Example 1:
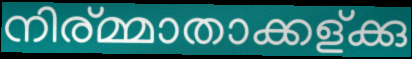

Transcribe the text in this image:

നിര്മ്മാതാക്കള്ക്കു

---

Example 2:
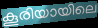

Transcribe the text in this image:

കൂരിയായിലെ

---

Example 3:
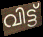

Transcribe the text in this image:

വിട്ട്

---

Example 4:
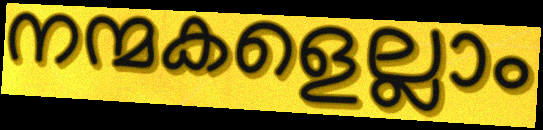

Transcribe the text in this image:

നന്മകളെല്ലാം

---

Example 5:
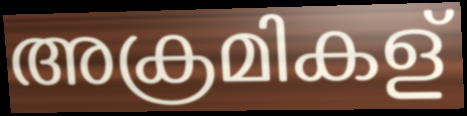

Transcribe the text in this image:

അക്രമികള്